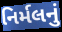
નિર્મલનું